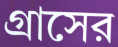
গ্রাসের